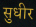
सुधीर